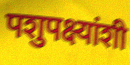
पशुपक्ष्यांशी